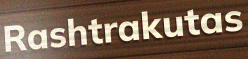
Rashtrakutas